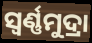
ସ୍ୱର୍ଣ୍ଣମୁଦ୍ରା